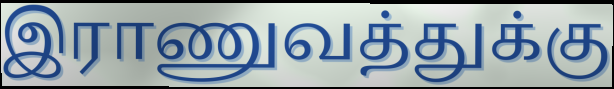
இராணுவத்துக்கு